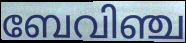
ബേവിഞ്ച